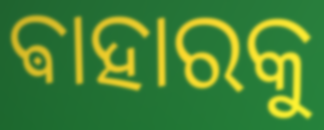
ଵାହାରକୁ